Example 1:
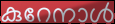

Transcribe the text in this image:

കുറേനാൾ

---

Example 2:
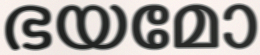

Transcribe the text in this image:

ഭയമോ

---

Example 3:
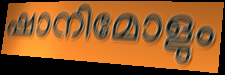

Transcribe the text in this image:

ഷാനിമോളും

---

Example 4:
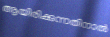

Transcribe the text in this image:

ആയിരിക്കുന്നതിനാൽ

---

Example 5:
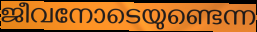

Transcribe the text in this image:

ജീവനോടെയുണ്ടെന്ന